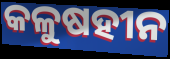
କଳୁଷହୀନ